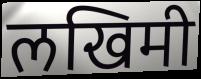
लखिमी